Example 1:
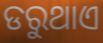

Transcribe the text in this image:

ଡରୁଥାଏ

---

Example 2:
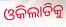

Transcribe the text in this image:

ଓକିଲାତିକୁ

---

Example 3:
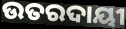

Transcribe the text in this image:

ଉତରଦାୟୀ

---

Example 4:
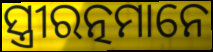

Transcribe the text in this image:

ସ୍ତ୍ରୀରତ୍ନମାନେ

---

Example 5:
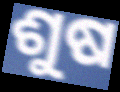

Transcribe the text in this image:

ଶୁଷ